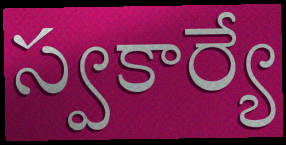
స్వకార్యే